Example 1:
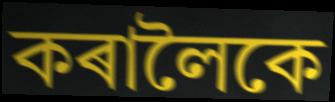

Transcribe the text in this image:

কৰালৈকে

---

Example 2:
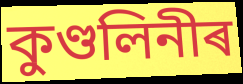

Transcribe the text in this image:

কুণ্ডলিনীৰ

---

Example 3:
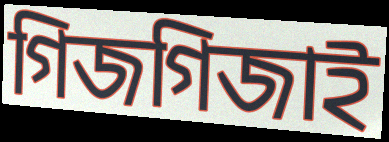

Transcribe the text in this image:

গিজগিজাই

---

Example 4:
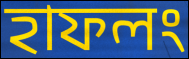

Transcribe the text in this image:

হাফলং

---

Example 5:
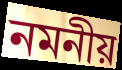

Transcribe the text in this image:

নমনীয়